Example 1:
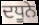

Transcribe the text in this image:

ਦਧੂਨੇ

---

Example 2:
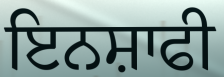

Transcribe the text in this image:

ਇਨਸ਼ਾਫੀ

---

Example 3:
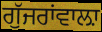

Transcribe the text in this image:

ਗੁੱਜਰਾਂਵਾਲ਼ਾ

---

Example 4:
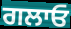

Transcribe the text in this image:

ਗਲਾਓ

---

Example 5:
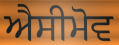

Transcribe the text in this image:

ਐਸੀਮੋਵ